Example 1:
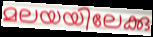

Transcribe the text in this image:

മലയയിലേക്കു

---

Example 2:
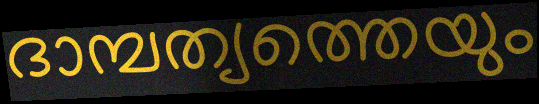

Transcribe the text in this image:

ദാമ്പത്യത്തെയും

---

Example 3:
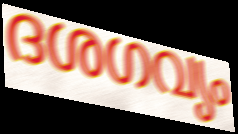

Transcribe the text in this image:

ദശഗവ്യം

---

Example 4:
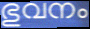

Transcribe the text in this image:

ഭുവനം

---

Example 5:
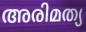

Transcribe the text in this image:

അരിമത്യ